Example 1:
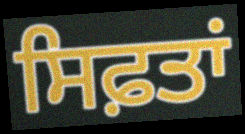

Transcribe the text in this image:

ਸਿਫ਼ਤਾਂ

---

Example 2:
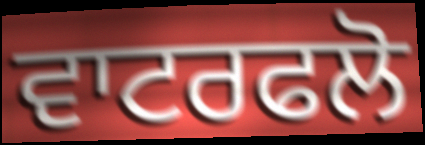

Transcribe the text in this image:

ਵਾਟਰਫਲੋ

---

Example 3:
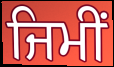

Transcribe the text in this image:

ਜਿਮੀਂ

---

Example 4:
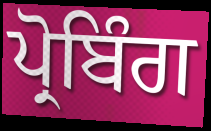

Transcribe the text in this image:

ਪ੍ਰੋਬਿੰਗ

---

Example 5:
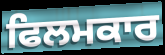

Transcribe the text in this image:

ਫਿਲਮਕਾਰ